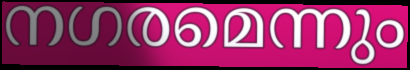
നഗരമെന്നും